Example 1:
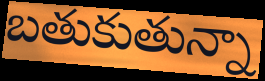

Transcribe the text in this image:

బతుకుతున్నా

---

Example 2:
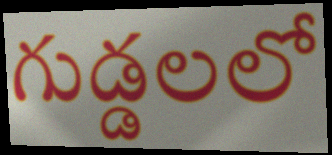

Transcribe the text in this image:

గుడ్డలలో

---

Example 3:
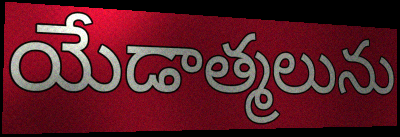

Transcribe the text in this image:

యేడాత్మలును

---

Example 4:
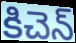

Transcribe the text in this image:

కిచెన్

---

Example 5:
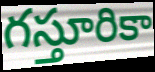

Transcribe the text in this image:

గస్తూరికా